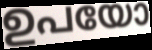
ഉപയോ